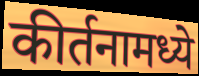
कीर्तनामध्ये